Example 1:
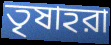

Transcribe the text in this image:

তৃষাহরা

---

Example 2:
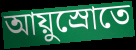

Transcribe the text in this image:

আয়ুস্রোতে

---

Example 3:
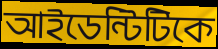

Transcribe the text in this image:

আইডেন্টিটিকে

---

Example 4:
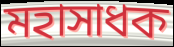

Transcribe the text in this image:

মহাসাধক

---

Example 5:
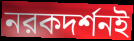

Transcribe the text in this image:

নরকদর্শনই